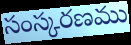
సంస్కరణము